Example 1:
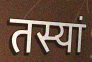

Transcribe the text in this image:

तस्यां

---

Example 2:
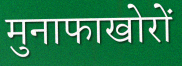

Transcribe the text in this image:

मुनाफाखोरों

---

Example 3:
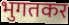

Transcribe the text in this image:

भुगतकर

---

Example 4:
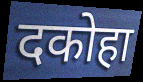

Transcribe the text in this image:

दकोहा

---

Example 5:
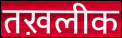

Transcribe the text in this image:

तख़लीक